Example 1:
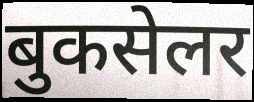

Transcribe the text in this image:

बुकसेलर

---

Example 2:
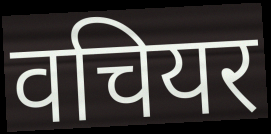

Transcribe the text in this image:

वचियर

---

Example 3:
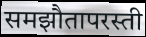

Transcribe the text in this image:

समझौतापरस्ती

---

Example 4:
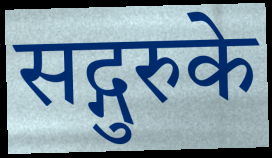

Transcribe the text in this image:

सद्गुरुके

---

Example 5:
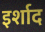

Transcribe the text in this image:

इर्शाद